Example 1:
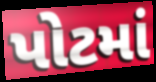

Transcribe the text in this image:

પોટમાં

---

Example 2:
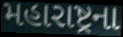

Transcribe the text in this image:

મહારાષ્ટ્રના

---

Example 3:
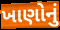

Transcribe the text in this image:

ખાણોનું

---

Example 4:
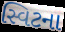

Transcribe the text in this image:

સ્વિટના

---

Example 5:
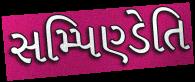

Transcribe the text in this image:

સમ્પિણ્ડેતિ